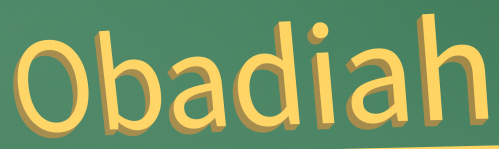
Obadiah